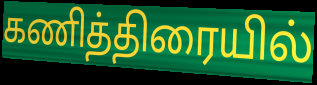
கணித்திரையில்